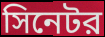
সিনেটর